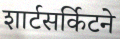
शार्टसर्किटने